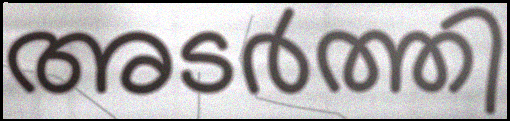
അടർത്തി